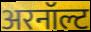
अरनॉल्ट